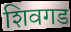
शिवगड